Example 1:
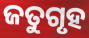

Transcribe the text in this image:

ଜତୁଗୃହ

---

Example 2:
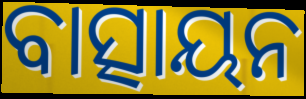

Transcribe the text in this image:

ବାତ୍ସାୟନ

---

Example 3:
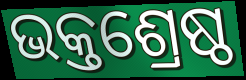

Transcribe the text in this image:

ଭକ୍ତଶ୍ରେଷ୍ଠ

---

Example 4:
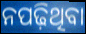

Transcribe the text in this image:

ନପଢ଼ିଥିବା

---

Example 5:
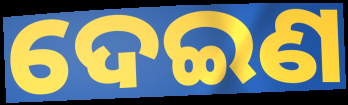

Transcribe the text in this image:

ଦେଇଣ